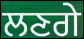
ਲਣਗੇ